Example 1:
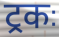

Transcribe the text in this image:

ट्रकः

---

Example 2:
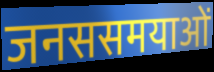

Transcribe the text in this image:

जनससमयाओं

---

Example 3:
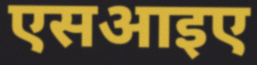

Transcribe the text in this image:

एसआइए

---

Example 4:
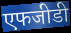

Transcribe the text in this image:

एफजीडी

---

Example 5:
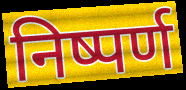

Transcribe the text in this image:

निष्पर्ण